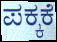
ಪಕ್ಕಕೆ